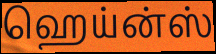
ஹெய்ன்ஸ்